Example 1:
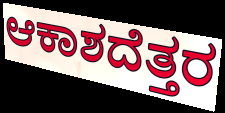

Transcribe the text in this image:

ಆಕಾಶದೆತ್ತರ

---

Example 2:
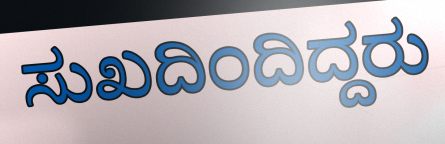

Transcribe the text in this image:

ಸುಖದಿಂದಿದ್ದರು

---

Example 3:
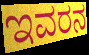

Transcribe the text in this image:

ಇವರನ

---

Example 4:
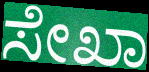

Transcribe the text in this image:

ಸೇಖಾ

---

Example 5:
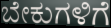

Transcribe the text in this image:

ಬೇಕುಗಳಿಗೆ